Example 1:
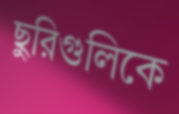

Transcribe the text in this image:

ছুরিগুলিকে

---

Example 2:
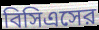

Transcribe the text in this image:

বিসিএসের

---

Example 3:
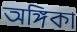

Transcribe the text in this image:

অঙ্গিকা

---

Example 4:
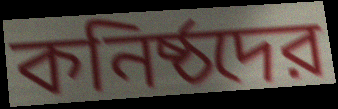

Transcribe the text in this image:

কনিষ্ঠদের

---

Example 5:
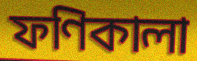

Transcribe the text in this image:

ফণিকালা